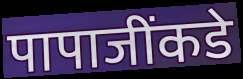
पापाजींकडे